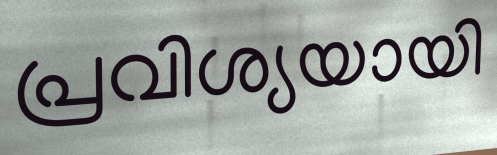
പ്രവിശ്യയായി